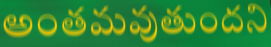
అంతమవుతుందని